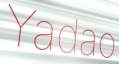
Yadao